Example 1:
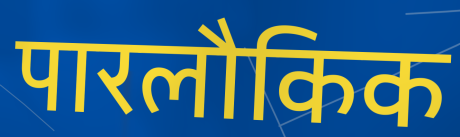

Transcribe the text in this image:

पारलौकिक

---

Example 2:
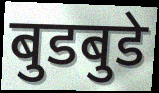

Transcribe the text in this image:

बुडबुडे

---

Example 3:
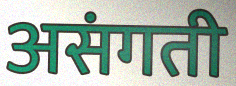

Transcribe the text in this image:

असंगती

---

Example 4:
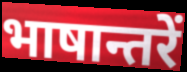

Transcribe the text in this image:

भाषान्तरें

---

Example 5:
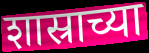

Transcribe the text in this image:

शास्राच्या